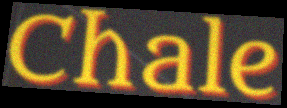
Chale